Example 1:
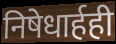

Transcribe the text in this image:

निषेधार्हही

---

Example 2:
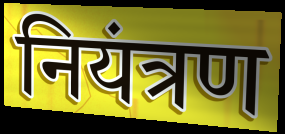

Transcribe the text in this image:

नियंत्रण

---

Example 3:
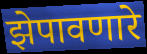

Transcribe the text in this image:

झेपावणारे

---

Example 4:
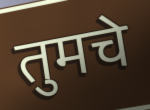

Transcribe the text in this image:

तुमचे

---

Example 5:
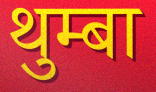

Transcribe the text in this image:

थुम्बा